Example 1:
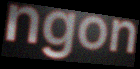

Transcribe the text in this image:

ngon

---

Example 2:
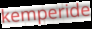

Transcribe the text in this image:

kemperide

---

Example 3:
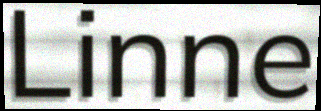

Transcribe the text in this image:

Linne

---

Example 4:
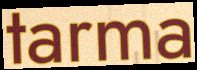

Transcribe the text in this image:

tarma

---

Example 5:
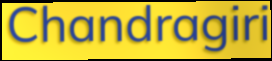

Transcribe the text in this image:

Chandragiri